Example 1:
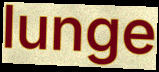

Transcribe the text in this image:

lunge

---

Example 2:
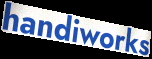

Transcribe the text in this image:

handiworks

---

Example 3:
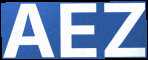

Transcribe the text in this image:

AEZ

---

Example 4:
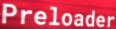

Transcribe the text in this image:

Preloader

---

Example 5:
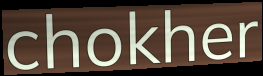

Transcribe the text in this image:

chokher